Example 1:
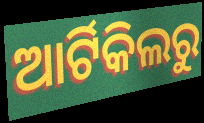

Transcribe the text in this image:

ଆର୍ଟିକିଲରୁ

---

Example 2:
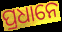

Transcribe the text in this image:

ପ୍ରଧାନେ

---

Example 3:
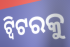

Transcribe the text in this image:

ଟ୍ୱିଟରକୁ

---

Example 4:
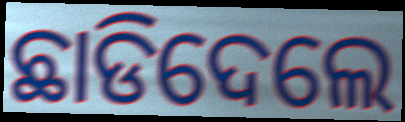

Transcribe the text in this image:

ଛାଡିଦେଲେ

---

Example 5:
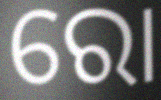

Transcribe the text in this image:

ରୋ